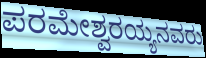
ಪರಮೇಶ್ವರಯ್ಯನವರು